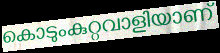
കൊടുംകുറ്റവാളിയാണ്